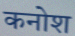
कनोश